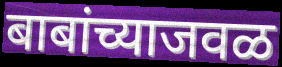
बाबांच्याजवळ